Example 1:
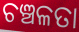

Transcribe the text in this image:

ଚଞ୍ଚଳତା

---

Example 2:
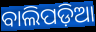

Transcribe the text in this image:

ବାଲିପଡ଼ିଆ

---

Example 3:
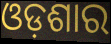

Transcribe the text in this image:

ଓଡ଼ଶାର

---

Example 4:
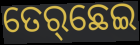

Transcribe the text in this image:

ତେର୍‌ଛେଇ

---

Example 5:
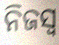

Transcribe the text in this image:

ନିଜସ୍ଵ